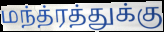
மந்த்ரத்துக்கு